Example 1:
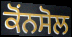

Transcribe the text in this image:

ਕੋਂਨਸੋਲ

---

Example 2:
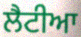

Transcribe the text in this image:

ਲੈਟੀਆ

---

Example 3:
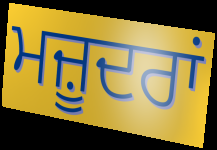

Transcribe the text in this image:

ਮਜ਼ੂਦਰਾਂ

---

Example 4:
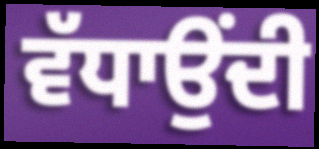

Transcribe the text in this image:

ਵੱਧਾਉਂਦੀ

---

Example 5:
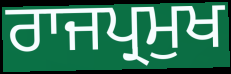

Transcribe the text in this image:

ਰਾਜਪ੍ਰਮੁਖ